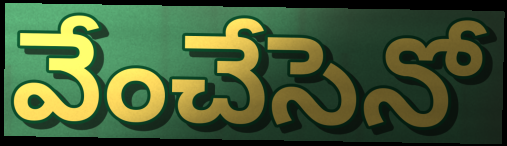
వేంచేసెనో